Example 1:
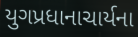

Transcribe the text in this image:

યુગપ્રધાનાચાર્યના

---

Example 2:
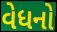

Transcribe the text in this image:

વેધનો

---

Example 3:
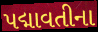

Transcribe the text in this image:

પદ્માવતીના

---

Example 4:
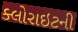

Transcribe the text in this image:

ક્લોરાઇટની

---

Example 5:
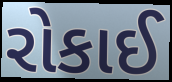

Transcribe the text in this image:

રોકાઈ